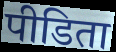
पीडिता